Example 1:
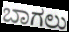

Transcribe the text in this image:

ಬಾಗಲು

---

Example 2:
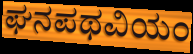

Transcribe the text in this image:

ಘನಪಥವಿಯಂ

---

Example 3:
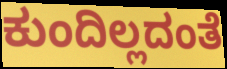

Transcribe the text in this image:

ಕುಂದಿಲ್ಲದಂತೆ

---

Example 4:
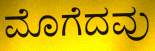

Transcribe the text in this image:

ಮೊಗೆದವು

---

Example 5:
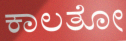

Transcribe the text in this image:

ಕಾಲತೋ